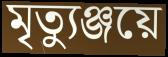
মৃত্যুঞ্জয়ে